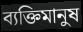
ব্যক্তিমানুষ